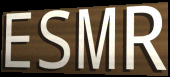
ESMR